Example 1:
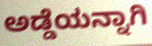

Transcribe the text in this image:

ಅಡ್ಡೆಯನ್ನಾಗಿ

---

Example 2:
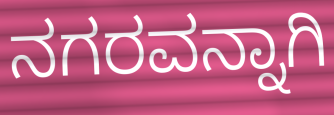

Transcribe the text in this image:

ನಗರವನ್ನಾಗಿ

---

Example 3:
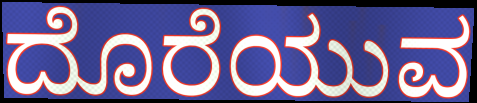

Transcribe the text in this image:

ದೊರೆಯುವ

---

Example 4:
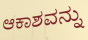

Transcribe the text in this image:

ಆಕಾಶವನ್ನು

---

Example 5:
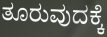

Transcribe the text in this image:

ತೂರುವುದಕ್ಕೆ